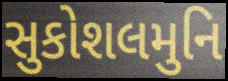
સુકોશલમુનિ